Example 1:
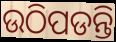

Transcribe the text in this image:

ଉଠିପଡନ୍ତି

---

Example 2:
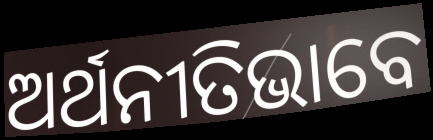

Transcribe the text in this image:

ଅର୍ଥନୀତିଭାବେ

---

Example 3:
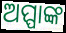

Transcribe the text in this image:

ଅପ୍ପାଙ୍କ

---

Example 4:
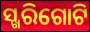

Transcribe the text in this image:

ସ୍ଖରିଗୋଟି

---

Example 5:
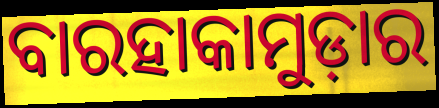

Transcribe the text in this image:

ବାରହାକାମୁଡ଼ାର